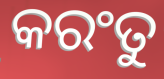
କରଂତୁ